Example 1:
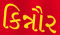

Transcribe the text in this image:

કિન્નૌર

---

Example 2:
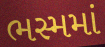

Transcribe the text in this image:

ભસ્મમાં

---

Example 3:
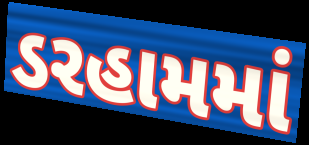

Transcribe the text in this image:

ડરહામમાં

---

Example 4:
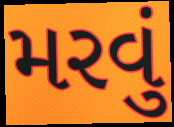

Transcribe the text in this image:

મરવું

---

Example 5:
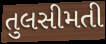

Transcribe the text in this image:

તુલસીમતી